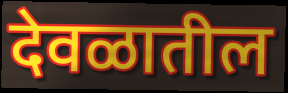
देवळातील